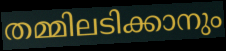
തമ്മിലടിക്കാനും